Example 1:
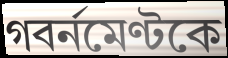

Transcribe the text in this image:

গবর্নমেণ্টকে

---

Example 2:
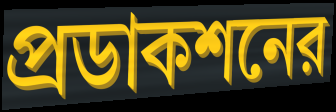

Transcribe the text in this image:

প্রডাকশনের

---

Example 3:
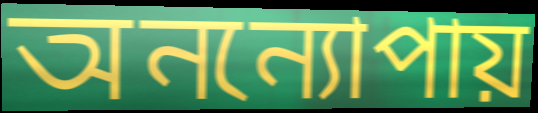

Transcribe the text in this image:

অনন্যোপায়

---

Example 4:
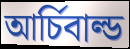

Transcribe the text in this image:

আর্চিবাল্ড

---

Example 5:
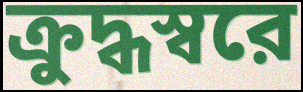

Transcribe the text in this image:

ক্রুদ্ধস্বরে